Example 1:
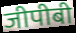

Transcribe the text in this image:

जीपीबी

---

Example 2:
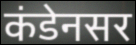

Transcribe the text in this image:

कंडेनसर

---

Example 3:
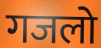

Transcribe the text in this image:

गजलो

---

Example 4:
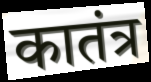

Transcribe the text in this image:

कातंत्र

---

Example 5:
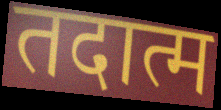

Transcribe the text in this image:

तदात्म